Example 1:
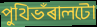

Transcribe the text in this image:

পুথিভঁৰালটো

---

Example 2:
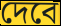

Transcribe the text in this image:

দেবে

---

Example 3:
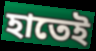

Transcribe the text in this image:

হাতেই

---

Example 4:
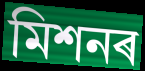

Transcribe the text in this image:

মিশনৰ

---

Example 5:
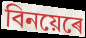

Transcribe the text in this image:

বিনয়েৰে